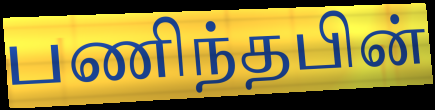
பணிந்தபின்